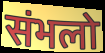
संभलो